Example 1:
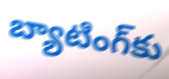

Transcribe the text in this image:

బ్యాటింగ్‌కు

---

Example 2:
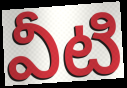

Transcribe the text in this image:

వీటి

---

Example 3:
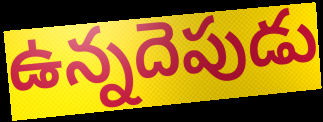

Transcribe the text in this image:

ఉన్నదెపుడు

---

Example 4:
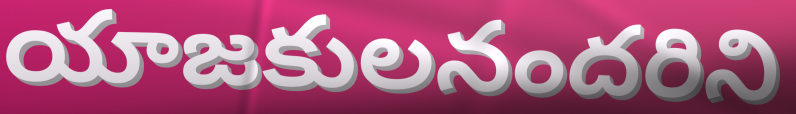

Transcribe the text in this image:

యాజకులనందరిని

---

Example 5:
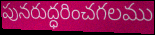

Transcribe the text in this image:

పునరుద్ధరించగలము